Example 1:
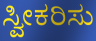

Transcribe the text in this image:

ಸ್ವೀಕರಿಸು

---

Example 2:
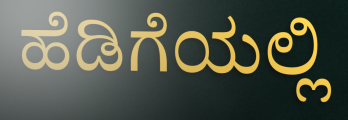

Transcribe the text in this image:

ಹೆಡಿಗೆಯಲ್ಲಿ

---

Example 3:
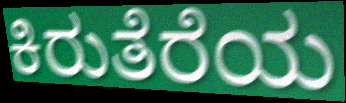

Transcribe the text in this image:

ಕಿರುತೆರೆಯ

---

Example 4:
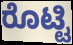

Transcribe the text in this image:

ರೊಟ್ಟಿ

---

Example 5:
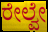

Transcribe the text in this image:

ರೇಲ್ವೇ